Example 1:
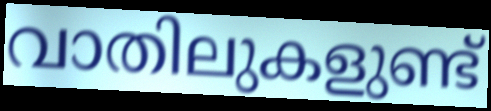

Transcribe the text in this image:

വാതിലുകളുണ്ട്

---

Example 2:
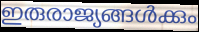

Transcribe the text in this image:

ഇരുരാജ്യങ്ങൾക്കും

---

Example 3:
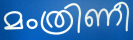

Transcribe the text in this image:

മംത്രിണീ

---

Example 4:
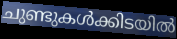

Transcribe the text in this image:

ചുണ്ടുകൾക്കിടയിൽ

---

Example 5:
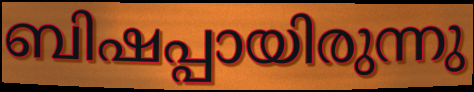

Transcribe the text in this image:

ബിഷപ്പായിരുന്നു